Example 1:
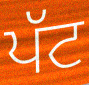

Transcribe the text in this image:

ਪੱਟ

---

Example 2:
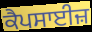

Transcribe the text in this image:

ਕੈਪਸਾਈਜ਼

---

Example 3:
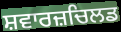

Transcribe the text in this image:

ਸ਼ਵਾਰਜ਼ਚਿਲਡ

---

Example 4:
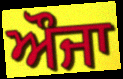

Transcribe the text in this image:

ਔਜਾ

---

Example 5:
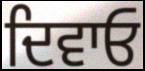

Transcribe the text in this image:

ਦਿਵਾਓ